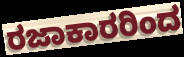
ರಜಾಕಾರರಿಂದ